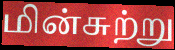
மின்சுற்று